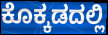
ಕೊಕ್ಕಡದಲ್ಲಿ